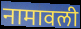
नामावली